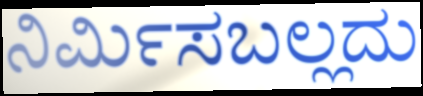
ನಿರ್ಮಿಸಬಲ್ಲದು